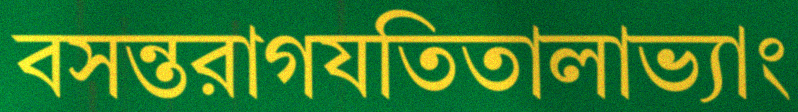
বসন্তরাগযতিতালাভ্যাং